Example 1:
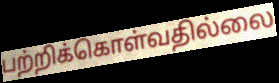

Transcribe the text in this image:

பற்றிக்கொள்வதில்லை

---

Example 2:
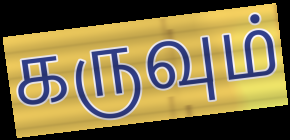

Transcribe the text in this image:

கருவும்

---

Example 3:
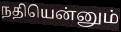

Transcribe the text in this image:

நதியென்னும்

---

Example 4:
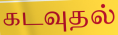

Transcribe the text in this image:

கடவுதல்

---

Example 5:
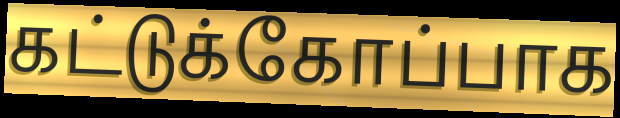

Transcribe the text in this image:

கட்டுக்கோப்பாக